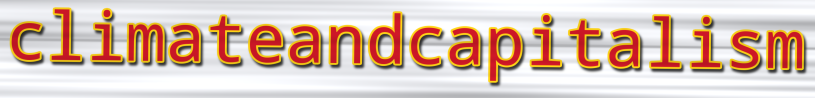
climateandcapitalism